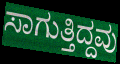
ಸಾಗುತ್ತಿದ್ದವು